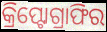
କ୍ରିପ୍ଟୋଗ୍ରାଫିର